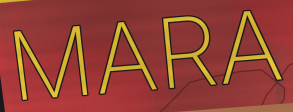
MARA